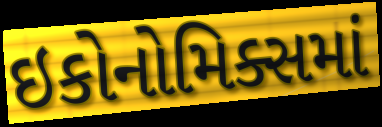
ઇકોનોમિક્સમાં